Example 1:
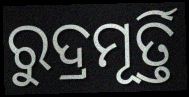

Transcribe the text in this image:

ରୁଦ୍ରମୂର୍ତ୍ତି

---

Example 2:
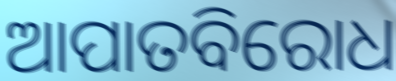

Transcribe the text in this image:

ଆପାତବିରୋଧ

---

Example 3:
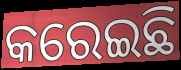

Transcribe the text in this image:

କରେଇଛି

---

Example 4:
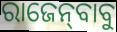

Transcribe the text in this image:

ରାଜେନ୍‌ବାବୁ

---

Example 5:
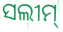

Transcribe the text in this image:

ସଲୀମ୍